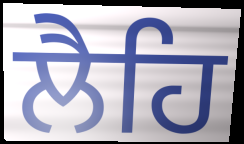
ਲੈਹਿ